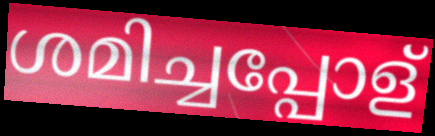
ശമിച്ചപ്പോള്